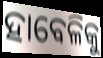
ହାବେଳିକୁ